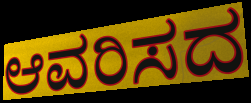
ಆವರಿಸದ